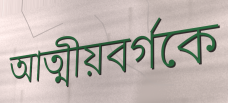
আত্মীয়বর্গকে